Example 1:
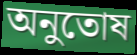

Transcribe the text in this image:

অনুতোষ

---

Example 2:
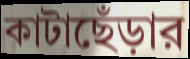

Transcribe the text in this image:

কাটাছেঁড়ার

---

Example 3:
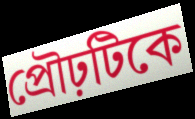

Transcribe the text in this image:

প্রৌঢ়টিকে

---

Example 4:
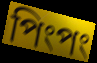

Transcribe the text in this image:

পিংপং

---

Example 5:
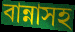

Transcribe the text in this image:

বান্নাসহ